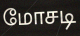
மோசடி